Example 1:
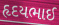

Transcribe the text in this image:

હૃદયભાઈ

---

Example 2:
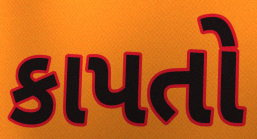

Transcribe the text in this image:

કાપતો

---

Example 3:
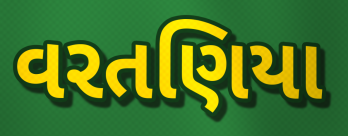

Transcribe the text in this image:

વરતણિયા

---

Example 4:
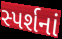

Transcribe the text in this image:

સ્પર્શનાં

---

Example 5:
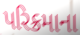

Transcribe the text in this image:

પરિક્રમાના